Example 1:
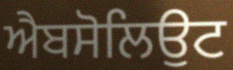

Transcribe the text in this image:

ਐਬਸੋਲਿਉਟ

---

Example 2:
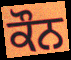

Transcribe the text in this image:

ਕੌਨ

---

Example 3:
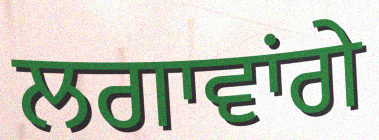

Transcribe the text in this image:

ਲਗਾਵਾਂਗੇ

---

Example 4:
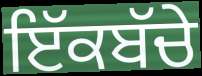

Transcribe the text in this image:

ਇੱਕਬੱਚੇ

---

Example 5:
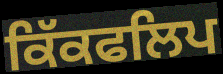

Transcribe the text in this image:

ਕਿੱਕਫਲਿਪ